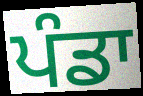
ਪੰਡਾ